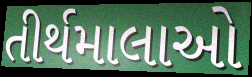
તીર્થમાલાઓ